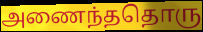
அணைந்ததொரு